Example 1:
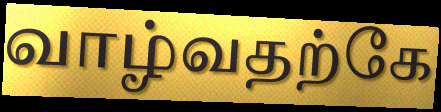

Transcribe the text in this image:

வாழ்வதற்கே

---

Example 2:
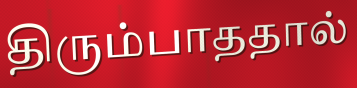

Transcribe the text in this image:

திரும்பாததால்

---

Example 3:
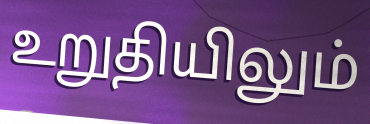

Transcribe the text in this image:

உறுதியிலும்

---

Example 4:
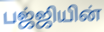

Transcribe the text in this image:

பஜ்ஜியின்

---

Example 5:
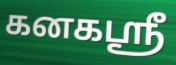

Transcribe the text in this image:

கனகஸ்ரீ